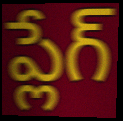
ప్లేగ్